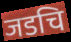
जडचि